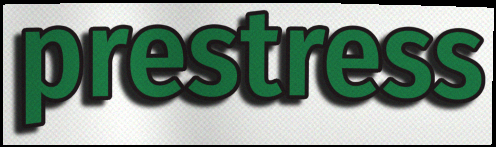
prestress